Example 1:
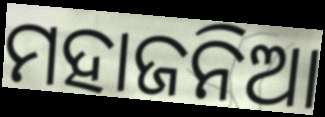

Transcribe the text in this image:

ମହାଜନିଆ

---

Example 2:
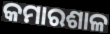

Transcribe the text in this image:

କମାରଶାଳ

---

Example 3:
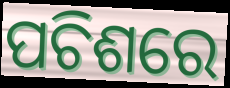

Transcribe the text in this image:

ପଚିଶରେ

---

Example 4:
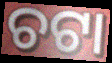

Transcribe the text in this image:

ଚଟା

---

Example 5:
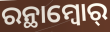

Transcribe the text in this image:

ରନ୍ଥାମ୍ବୋର୍